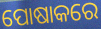
ପୋଷାକରେ